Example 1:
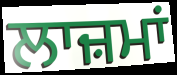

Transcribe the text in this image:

ਲਾਜ਼ਮਾਂ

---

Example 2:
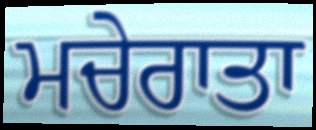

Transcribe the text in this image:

ਮਚੇਰਾਤਾ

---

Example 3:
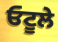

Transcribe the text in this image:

ਓਟੂਲੇ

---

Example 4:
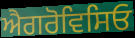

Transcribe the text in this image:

ਐਗਰੋਵਿਸਿਓ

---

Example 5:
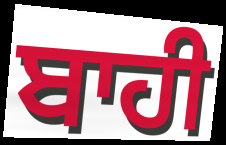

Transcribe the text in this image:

ਬਾਹੀ